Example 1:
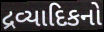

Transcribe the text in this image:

દ્રવ્યાદિકનો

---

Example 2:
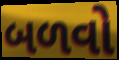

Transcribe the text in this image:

બળવો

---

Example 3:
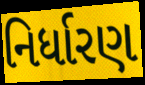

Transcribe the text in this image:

નિર્ધારણ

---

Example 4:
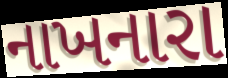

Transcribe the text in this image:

નાખનારા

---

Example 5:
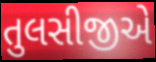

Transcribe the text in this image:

તુલસીજીએ